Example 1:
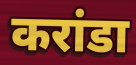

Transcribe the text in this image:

करांडा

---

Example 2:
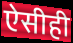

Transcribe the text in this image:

ऐसीही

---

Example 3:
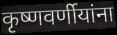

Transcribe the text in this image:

कृष्णवर्णीयांना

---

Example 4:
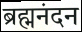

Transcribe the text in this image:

ब्रह्मनंदन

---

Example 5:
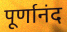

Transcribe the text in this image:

पूर्णानंद